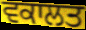
ਵਕਾਲਤ